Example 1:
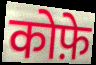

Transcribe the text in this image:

कोफ़े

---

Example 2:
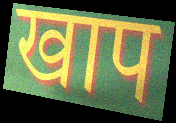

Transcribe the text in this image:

खाप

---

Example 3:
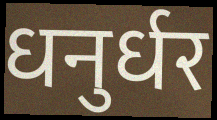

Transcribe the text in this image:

धनुर्धर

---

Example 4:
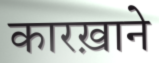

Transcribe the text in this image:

कारख़ाने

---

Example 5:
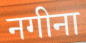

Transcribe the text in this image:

नगीना